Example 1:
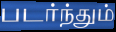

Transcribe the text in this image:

படர்ந்தும்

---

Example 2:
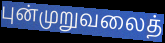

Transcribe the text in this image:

புன்முறுவலைத்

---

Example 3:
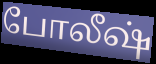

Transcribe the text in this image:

போலீஷ்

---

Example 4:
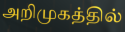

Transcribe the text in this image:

அறிமுகத்தில்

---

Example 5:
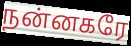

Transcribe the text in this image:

நன்னகரே